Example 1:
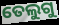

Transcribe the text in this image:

ତେଲୁଗୁ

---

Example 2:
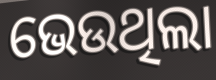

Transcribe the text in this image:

ଭେଉଥିଲା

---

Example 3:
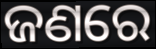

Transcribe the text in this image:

ଜଣରେ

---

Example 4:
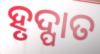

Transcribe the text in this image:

ହୃଦ୍ପାତ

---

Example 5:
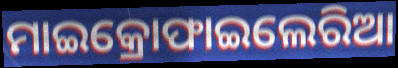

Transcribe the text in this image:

ମାଇକ୍ରୋଫାଇଲେରିଆ